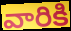
వారికి